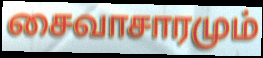
சைவாசாரமும்